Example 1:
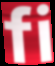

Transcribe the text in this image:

fi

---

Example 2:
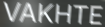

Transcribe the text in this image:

VAKHTE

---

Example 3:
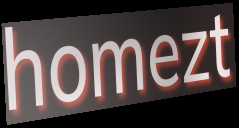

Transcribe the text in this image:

homezt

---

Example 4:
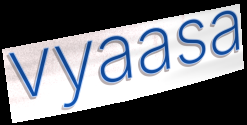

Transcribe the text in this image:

vyaasa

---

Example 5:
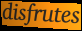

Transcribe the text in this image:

disfrutes